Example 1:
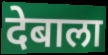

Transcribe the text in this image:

देबाला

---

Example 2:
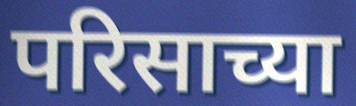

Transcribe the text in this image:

परिसाच्या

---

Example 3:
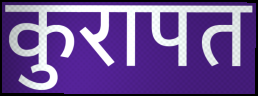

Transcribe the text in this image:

कुरापत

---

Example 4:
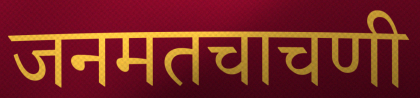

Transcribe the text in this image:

जनमतचाचणी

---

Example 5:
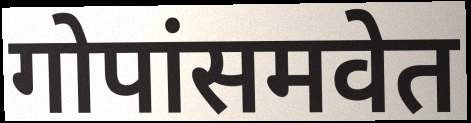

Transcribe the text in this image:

गोपांसमवेत